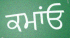
ਕਮਾਂਓ